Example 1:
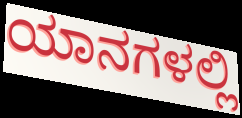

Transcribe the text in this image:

ಯಾನಗಳಲ್ಲಿ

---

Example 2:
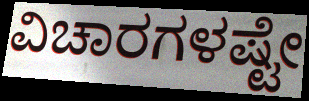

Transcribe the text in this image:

ವಿಚಾರಗಳಷ್ಟೇ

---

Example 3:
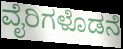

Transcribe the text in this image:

ವೈರಿಗಳೊಡನೆ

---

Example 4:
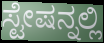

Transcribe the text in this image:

ಸ್ಟೇಷನ್ನಲ್ಲಿ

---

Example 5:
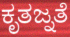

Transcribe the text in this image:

ಕೃತಜ್ನತೆ